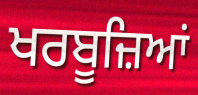
ਖਰਬੂਜ਼ਿਆਂ